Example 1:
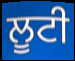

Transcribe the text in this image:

ਲੂਟੀ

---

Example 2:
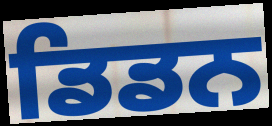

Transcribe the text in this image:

ਡਿਡਨ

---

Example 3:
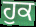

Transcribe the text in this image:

ਹੁਕ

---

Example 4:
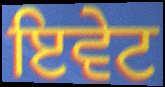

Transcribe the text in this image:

ਇਵੇਟ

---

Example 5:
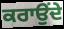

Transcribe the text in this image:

ਕਰਾਉਂਦੇ